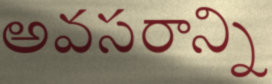
అవసరాన్ని